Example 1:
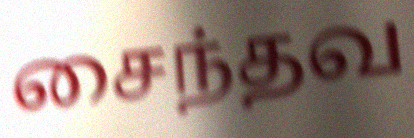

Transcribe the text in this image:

சைந்தவ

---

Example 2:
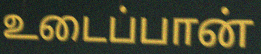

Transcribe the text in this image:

உடைப்பான்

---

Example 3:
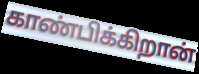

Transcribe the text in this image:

காண்பிக்கிறான்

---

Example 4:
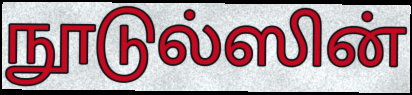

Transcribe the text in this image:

நூடுல்ஸின்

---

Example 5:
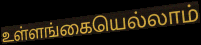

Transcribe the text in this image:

உள்ளங்கையெல்லாம்